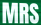
MRS